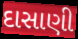
દાસાણી